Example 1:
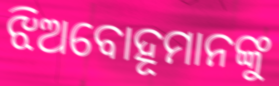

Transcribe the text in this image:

ଝିଅବୋହୂମାନଙ୍କୁ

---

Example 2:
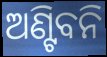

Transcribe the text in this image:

ଅଣ୍ଟିବନି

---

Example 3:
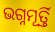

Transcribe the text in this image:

ଭଗ୍ନମୂର୍ତ୍ତି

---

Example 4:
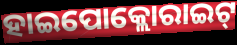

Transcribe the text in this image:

ହାଇପୋକ୍ଲୋରାଇଟ୍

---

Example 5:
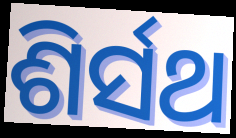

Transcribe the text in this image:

ଶିର୍ସଥ